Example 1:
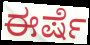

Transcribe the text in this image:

ಈರ್ಷೆ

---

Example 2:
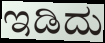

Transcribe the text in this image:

ಇಡಿದು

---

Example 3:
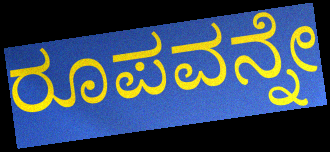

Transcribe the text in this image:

ರೂಪವನ್ನೇ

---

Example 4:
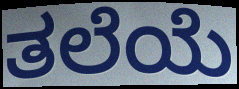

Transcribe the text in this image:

ತಲೆಯೆ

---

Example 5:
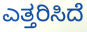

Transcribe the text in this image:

ಎತ್ತರಿಸಿದೆ